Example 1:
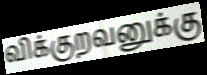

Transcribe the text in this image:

விக்குறவனுக்கு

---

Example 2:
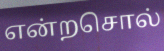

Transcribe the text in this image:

என்றசொல்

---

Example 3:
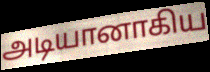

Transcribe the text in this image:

அடியானாகிய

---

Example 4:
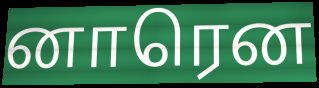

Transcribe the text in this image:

னாரென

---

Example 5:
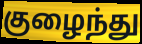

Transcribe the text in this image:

குழைந்து